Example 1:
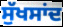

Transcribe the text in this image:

ਸੁੱਖਸਾਂਦ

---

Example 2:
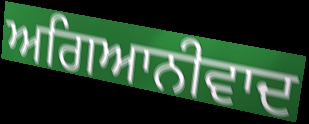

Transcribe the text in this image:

ਅਗਿਆਨੀਵਾਦ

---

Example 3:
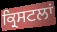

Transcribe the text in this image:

ਕ੍ਰਿਸਟਲਾਂ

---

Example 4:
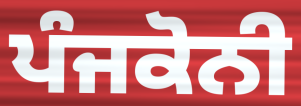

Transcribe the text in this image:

ਪੰਜਕੋਨੀ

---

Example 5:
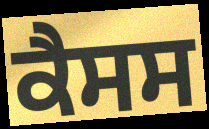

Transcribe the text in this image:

ਕੈਸਸ